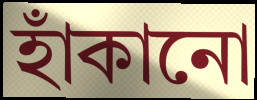
হাঁকানো